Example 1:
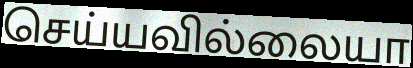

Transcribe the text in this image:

செய்யவில்லையா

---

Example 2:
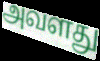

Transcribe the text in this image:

அவளது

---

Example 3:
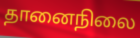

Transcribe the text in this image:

தானைநிலை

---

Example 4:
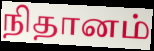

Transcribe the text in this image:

நிதானம்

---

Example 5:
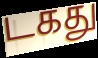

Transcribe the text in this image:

டகது